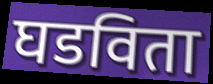
घडविता